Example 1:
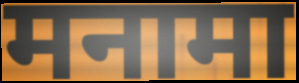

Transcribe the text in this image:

मनामा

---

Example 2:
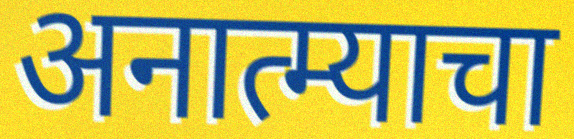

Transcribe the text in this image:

अनात्म्याचा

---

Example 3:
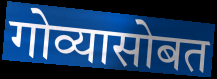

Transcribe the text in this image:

गोव्यासोबत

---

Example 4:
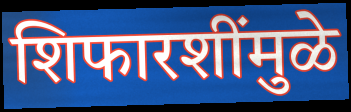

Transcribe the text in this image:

शिफारशींमुळे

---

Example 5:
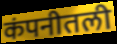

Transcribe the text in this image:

कंपनीतली